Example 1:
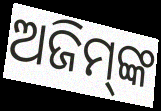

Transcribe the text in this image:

ଅଜିମ୍‌ଙ୍କ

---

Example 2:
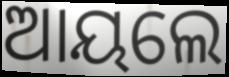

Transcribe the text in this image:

ଆୟଲେ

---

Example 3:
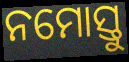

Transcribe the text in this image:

ନମୋସ୍ତୁ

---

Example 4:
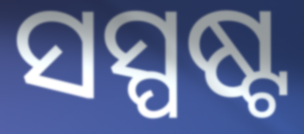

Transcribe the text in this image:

ସସ୍ପଷ୍ଟ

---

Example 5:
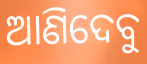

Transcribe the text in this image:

ଆଣିଦେବୁ